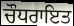
ਚੌਧਰਾਇਤ